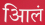
आिलं